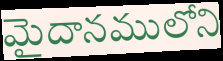
మైదానములోని